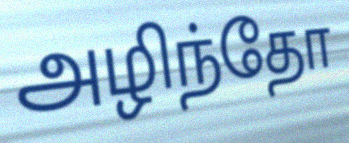
அழிந்தோ